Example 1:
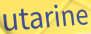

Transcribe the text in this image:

utarine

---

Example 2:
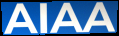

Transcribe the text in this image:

AIAA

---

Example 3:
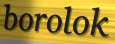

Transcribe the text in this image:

borolok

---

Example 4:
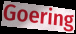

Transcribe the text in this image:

Goering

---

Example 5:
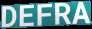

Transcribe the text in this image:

DEFRA